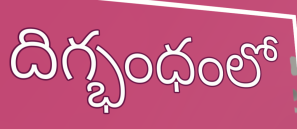
దిగ్భంధంలో